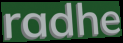
radhe